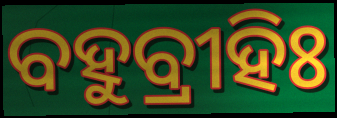
ବହୁବ୍ରୀହିଃ